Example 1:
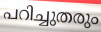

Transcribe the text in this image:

പറിച്ചുതരും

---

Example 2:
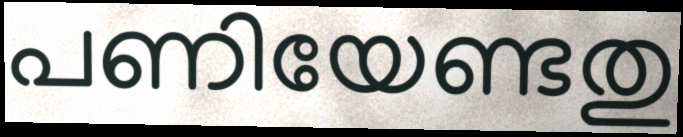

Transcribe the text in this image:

പണിയേണ്ടതു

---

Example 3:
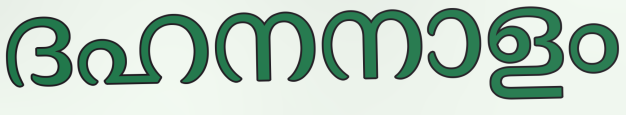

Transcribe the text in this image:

ദഹനനാളം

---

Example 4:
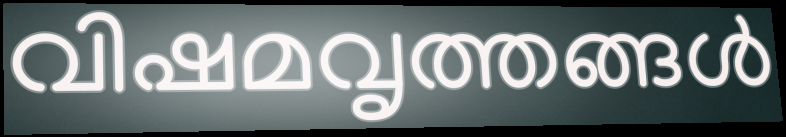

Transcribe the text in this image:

വിഷമവൃത്തങ്ങൾ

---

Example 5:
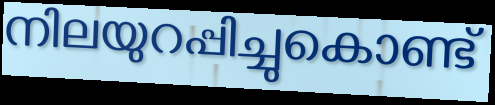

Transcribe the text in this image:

നിലയുറപ്പിച്ചുകൊണ്ട്